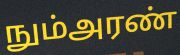
நும்அரண்